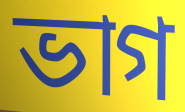
ভাগ